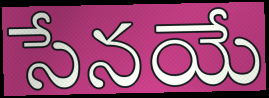
సేనయే